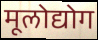
मूलोद्योग